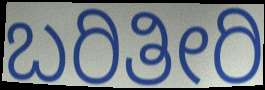
ಬರಿತೀರಿ